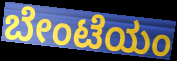
ಬೇಂಟೆಯಂ